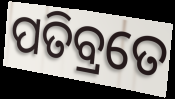
ପତିବ୍ରତେ